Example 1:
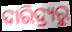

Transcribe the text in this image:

ଦାରିଦ୍ର୍ୟରୁ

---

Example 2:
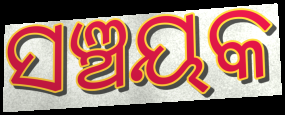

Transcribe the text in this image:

ସଞ୍ଚୟକ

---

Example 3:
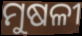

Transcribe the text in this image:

ମୁଷଳୀ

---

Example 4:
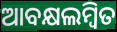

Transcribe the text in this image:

ଆବକ୍ଷଲମ୍ବିତ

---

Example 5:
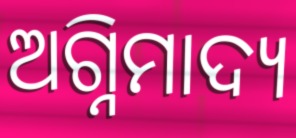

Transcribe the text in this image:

ଅଗ୍ନିମାଦ୍ୟ